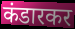
कंडारकर